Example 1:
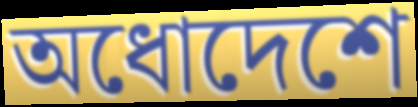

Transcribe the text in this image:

অধোদেশে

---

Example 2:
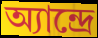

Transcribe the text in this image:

অ্যান্দ্রে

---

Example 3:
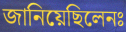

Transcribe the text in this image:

জানিয়েছিলেনঃ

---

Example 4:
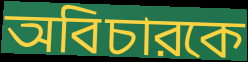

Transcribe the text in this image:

অবিচারকে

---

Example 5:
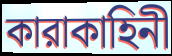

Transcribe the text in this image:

কারাকাহিনী